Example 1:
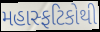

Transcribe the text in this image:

મહાસ્ફટિકોથી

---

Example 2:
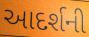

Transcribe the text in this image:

આદર્શની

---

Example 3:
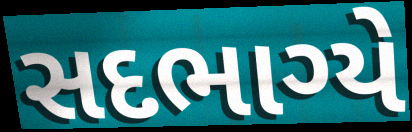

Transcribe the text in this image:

સદભાગ્યે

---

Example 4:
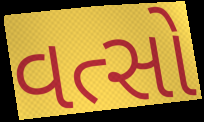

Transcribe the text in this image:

વત્સો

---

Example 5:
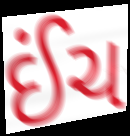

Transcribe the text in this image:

ઈંચ